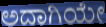
ಅದಾಗಿಯೇ